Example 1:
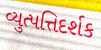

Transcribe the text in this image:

વ્યુત્પત્તિદર્શક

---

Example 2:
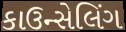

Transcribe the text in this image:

કાઉન્સેલિંગ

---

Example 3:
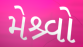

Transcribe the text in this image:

મેશ્ર્વો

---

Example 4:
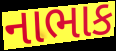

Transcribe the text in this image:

નાભાક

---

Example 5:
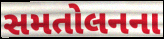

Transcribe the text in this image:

સમતોલનના